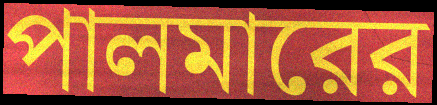
পালমারের